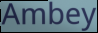
Ambey